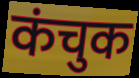
कंचुक